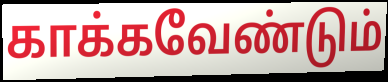
காக்கவேண்டும்